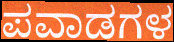
ಪವಾಡಗಳ